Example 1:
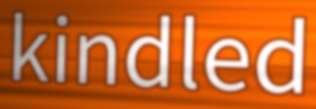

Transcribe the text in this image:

kindled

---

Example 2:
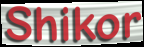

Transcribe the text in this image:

Shikor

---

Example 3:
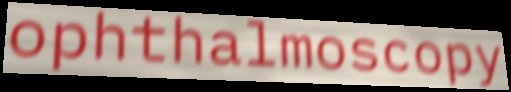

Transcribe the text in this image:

ophthalmoscopy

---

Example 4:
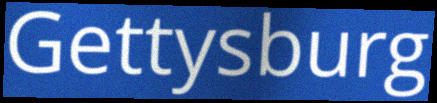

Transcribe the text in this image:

Gettysburg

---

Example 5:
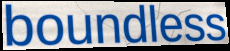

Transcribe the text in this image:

boundless